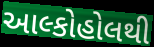
આલ્કોહોલથી